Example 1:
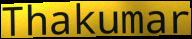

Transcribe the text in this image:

Thakumar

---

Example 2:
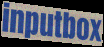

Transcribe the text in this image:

inputbox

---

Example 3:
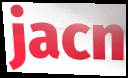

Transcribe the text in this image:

jacn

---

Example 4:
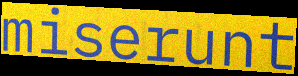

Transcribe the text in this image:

miserunt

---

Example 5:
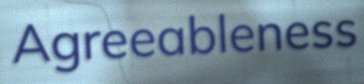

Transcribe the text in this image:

Agreeableness